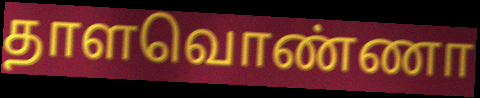
தாளவொண்ணா